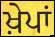
ਖ਼ੇਪਾਂ